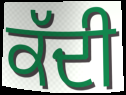
ਕੱਦੀ